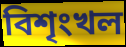
বিশৃংখল